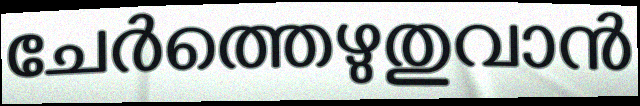
ചേർത്തെഴുതുവാൻ